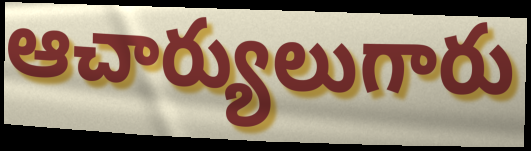
ఆచార్యులుగారు